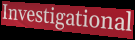
Investigational